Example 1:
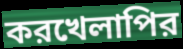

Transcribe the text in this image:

করখেলাপির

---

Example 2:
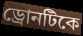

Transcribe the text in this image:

ড্রোনটিকে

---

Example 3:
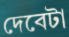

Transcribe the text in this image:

দেবেটা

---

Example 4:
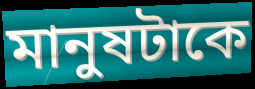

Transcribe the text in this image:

মানুষটাকে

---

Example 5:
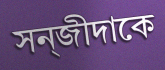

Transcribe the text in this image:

সন্জীদাকে